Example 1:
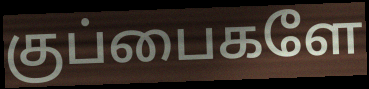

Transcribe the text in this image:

குப்பைகளே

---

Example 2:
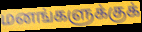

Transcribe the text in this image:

மனங்களுக்குக்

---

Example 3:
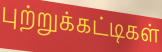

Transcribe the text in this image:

புற்றுக்கட்டிகள்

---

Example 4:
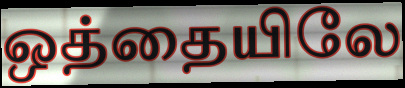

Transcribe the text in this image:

ஒத்தையிலே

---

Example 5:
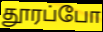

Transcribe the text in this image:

தூரப்போ